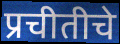
प्रचीतीचे